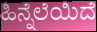
ಹಿನ್ನೆಲೆಯಿದೆ